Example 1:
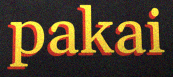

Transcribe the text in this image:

pakai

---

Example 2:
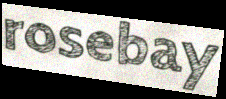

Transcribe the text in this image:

rosebay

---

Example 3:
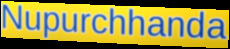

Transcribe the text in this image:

Nupurchhanda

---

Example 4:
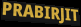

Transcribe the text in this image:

PRABIRJIT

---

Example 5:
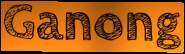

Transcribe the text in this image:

Ganong